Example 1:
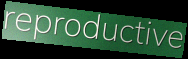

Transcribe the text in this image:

reproductive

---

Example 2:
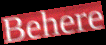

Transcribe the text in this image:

Behere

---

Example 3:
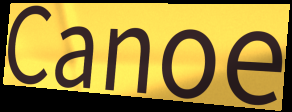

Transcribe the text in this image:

Canoe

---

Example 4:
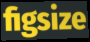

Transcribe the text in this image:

figsize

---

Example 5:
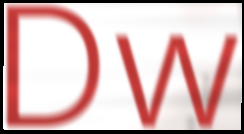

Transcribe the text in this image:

Dw